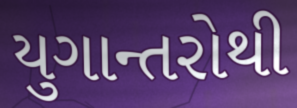
યુગાન્તરોથી